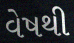
વેષથી